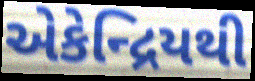
એકેન્દ્રિયથી